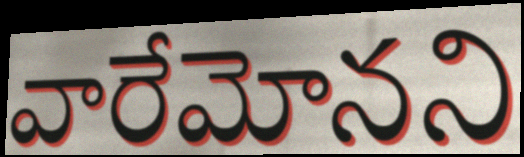
వారేమోనని